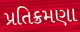
પ્રતિક્રમણા